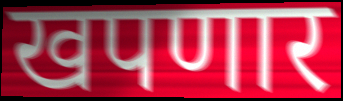
खपणार